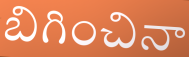
బిగించినా